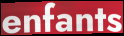
enfants